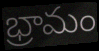
భ్రామం